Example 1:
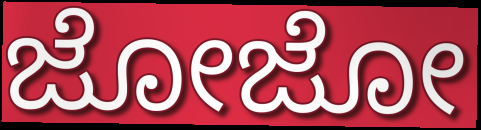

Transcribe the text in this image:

ಜೋಜೋ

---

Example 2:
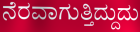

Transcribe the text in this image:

ನೆರವಾಗುತ್ತಿದ್ದುದು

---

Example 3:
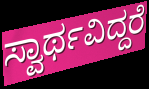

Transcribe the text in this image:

ಸ್ವಾರ್ಥವಿದ್ದರೆ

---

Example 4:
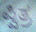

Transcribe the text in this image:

ಪ್ವಿತ್ರ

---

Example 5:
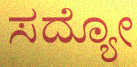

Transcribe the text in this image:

ಸದ್ಯೋ